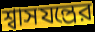
শ্বাসযন্ত্রের